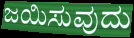
ಜಯಿಸುವುದು